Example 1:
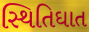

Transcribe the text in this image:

સ્થિતિઘાત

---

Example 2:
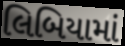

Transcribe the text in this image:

લિબિયામાં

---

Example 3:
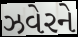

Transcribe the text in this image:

ઝવેરને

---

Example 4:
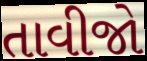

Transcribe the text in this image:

તાવીજો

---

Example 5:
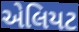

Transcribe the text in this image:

એલિયટ